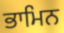
ਭਾਮਿਨ